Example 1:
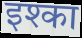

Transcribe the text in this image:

इश्का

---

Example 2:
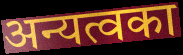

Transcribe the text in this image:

अन्यत्वका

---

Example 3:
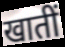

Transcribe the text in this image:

खातीं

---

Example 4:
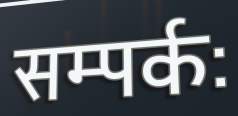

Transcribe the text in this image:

सम्पर्कः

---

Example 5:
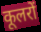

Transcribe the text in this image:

कूलरों